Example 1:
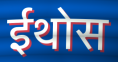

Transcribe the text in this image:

ईथोस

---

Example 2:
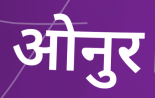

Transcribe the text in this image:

ओनुर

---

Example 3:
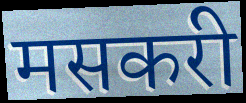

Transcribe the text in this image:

मसकरी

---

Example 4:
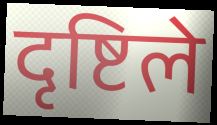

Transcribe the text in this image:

दृष्टिले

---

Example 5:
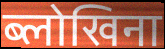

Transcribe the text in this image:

ब्लोखिना